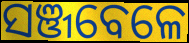
ସଞ୍ଜବେଳେ